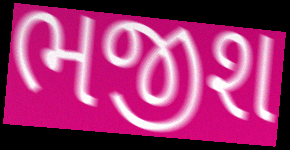
ભજીશ